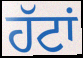
ਹੱਟਾਂ